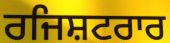
ਰਜਿਸ਼ਟਰਾਰ